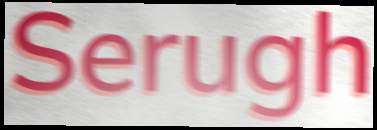
Serugh